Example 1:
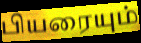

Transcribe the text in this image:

பியரையும்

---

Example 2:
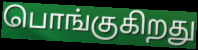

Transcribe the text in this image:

பொங்குகிறது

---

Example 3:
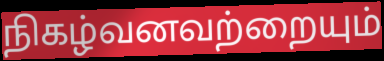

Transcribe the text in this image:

நிகழ்வனவற்றையும்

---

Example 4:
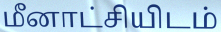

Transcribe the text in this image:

மீனாட்சியிடம்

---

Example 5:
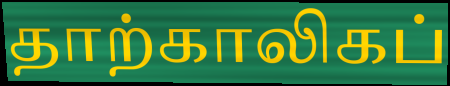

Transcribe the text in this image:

தாற்காலிகப்